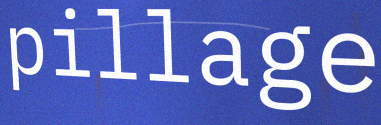
pillage